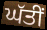
ਘੱਤੀਂ